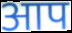
आप